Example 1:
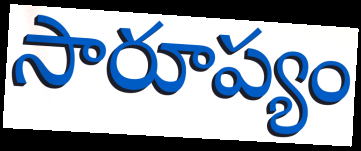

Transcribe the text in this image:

సారూప్యం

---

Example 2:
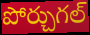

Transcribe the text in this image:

పోర్చుగల్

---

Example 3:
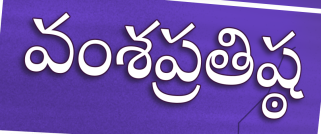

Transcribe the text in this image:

వంశప్రతిష్ఠ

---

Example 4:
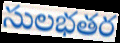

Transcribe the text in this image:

సులభతర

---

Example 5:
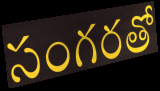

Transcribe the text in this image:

సంగరతో